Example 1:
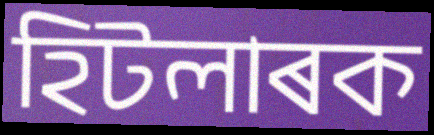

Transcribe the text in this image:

হিটলাৰক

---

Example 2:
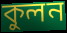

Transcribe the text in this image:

কুলন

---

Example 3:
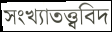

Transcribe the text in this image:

সংখ্যাতত্ত্ববিদ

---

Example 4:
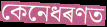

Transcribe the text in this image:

কেনেধৰণত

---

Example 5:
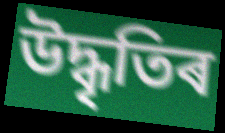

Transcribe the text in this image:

উদ্ধৃতিৰ